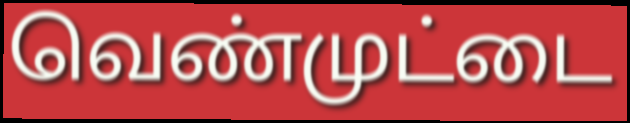
வெண்முட்டை